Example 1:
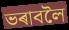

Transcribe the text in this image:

ভৰাবলৈ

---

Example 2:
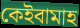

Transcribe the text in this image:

কেইবামাহ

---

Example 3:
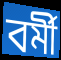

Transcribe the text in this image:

বৰ্মী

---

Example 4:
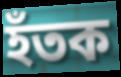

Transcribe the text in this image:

হঁতক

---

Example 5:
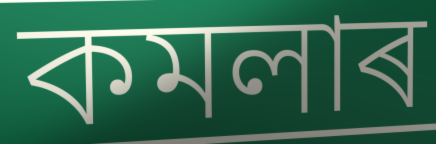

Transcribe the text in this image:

কমলাৰ